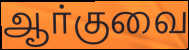
ஆர்குவை